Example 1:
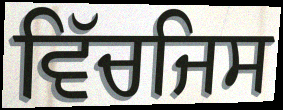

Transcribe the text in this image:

ਵਿੱਚਜਿਸ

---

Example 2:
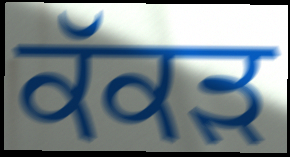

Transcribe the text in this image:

ਕੱਕਡ਼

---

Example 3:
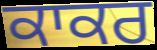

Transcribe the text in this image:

ਕਾਕਰ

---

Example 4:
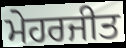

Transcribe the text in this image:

ਮੇਹਰਜੀਤ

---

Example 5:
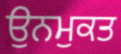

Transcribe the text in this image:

ਉਨਮੁਕਤ